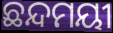
ଛନ୍ଦମୟୀ